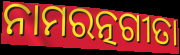
ନାମରତ୍ନଗୀତା